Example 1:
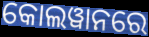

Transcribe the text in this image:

କୋଲୱାନରେ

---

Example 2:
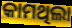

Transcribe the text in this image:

କାମଥିଲା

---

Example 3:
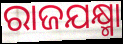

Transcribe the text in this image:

ରାଜଯକ୍ଷ୍ମା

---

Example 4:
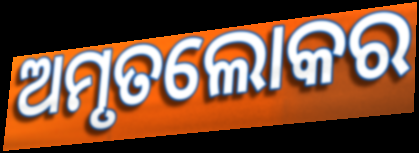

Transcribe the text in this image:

ଅମୃତଲୋକର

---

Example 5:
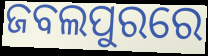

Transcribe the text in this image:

ଜବଲପୁରରେ